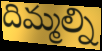
దిమ్మల్ని